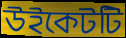
উইকেটটি